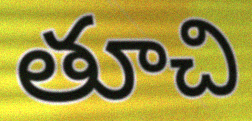
తూచి